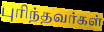
புரிந்தவர்கள்